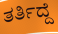
ತರ್ತಿದ್ದೆ